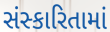
સંસ્કારિતામાં